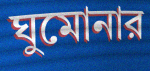
ঘুমোনার